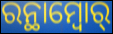
ରନ୍ଥାମ୍ବୋର୍